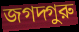
জগদ্গুরু